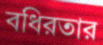
বধিরতার